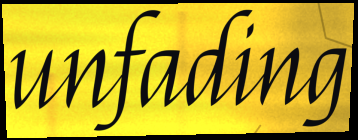
unfading